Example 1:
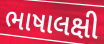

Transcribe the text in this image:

ભાષાલક્ષી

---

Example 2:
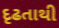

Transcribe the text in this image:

દૃઢતાથી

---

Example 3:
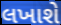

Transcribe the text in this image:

લખાશે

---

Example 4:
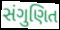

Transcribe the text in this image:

સંગુણિત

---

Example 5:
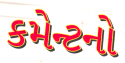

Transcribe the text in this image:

કમેન્ટનો